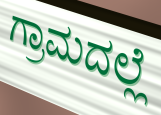
ಗ್ರಾಮದಲ್ಲೆ